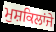
ਮੁਸ਼ਕਿਲਾਂਜੇ